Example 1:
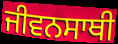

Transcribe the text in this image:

ਜੀਵਨਸਾਥੀ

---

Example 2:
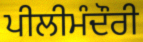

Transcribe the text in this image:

ਪੀਲੀਮੰਦੌਰੀ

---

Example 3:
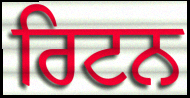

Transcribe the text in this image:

ਰਿਟਨ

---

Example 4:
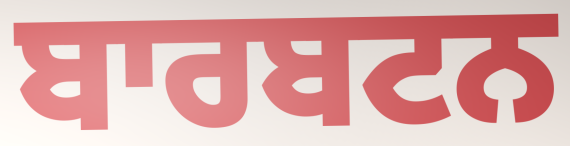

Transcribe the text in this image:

ਬਾਰਬਟਨ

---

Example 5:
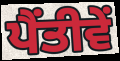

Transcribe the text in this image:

ਪੈਂਤੀਵੇਂ